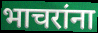
भाचरांना